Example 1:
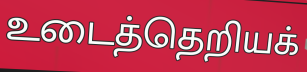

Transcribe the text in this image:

உடைத்தெறியக்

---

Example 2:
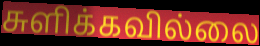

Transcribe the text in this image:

சுளிக்கவில்லை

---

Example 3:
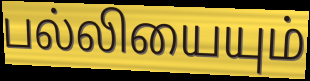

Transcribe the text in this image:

பல்லியையும்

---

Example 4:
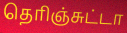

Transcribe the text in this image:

தெரிஞ்சுட்டா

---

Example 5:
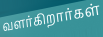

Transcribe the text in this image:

வளர்கிறார்கள்